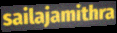
sailajamithra